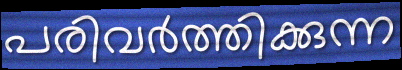
പരിവർത്തിക്കുന്ന